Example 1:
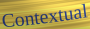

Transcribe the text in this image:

Contextual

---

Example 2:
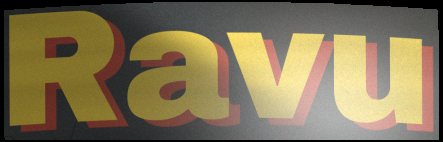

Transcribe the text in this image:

Ravu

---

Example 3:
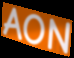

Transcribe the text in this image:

AON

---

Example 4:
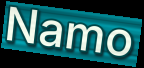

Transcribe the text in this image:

Namo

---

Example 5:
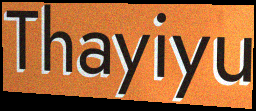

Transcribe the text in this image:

Thayiyu